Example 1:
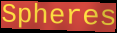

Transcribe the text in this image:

Spheres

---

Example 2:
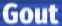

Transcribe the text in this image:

Gout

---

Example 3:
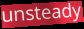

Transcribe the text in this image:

unsteady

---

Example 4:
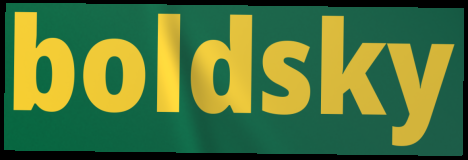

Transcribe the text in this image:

boldsky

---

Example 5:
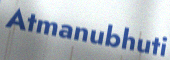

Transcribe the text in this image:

Atmanubhuti